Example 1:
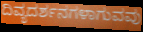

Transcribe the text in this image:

ದಿವ್ಯದರ್ಶನಗಳಾಗುವವು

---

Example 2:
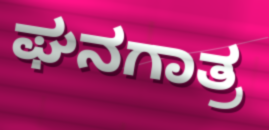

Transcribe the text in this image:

ಘನಗಾತ್ರ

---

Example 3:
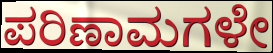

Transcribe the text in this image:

ಪರಿಣಾಮಗಳೇ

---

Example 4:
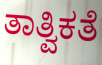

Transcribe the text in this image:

ತಾತ್ವಿಕತೆ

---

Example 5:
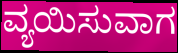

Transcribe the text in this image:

ವ್ಯಯಿಸುವಾಗ